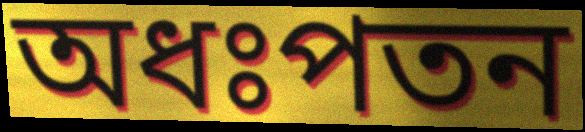
অধঃপতন